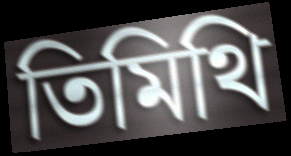
তিমিথি